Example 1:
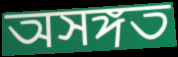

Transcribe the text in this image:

অসঙ্গত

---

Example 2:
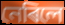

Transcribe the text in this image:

নেৰিলে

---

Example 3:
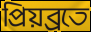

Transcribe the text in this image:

প্ৰিয়ব্ৰতে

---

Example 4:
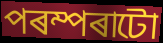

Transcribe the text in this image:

পৰম্পৰাটো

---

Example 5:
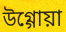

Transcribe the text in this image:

উগ্গোয়া